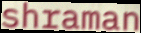
shraman